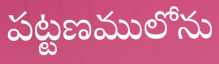
పట్టణములోను